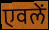
एवलें